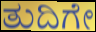
ತುದಿಗೇ